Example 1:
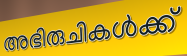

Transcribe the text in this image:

അഭിരുചികൾക്ക്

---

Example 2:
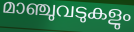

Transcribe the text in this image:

മാഞ്ചുവടുകളും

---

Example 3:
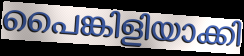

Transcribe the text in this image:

പൈങ്കിളിയാക്കി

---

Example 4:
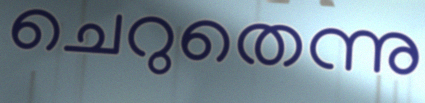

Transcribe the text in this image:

ചെറുതെന്നു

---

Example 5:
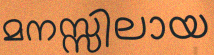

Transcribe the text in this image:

മനസ്സിലായ